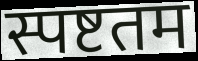
स्पष्टतम